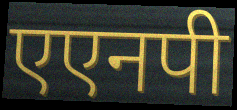
एएनपी